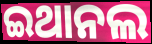
ଇଥାନଲ